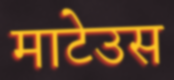
माटेउस